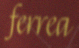
ferrea